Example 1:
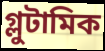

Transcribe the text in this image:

গ্লুটামিক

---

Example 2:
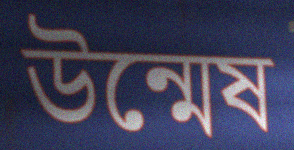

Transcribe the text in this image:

উন্মেষ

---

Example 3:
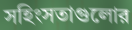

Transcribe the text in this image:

সহিংসতাগুলোর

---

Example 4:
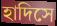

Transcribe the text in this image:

হাদিসে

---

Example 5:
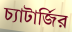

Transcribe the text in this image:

চ্যাটার্জির